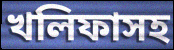
খলিফাসহ